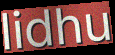
lidhu